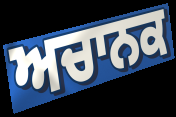
ਅਚਾਨਕ